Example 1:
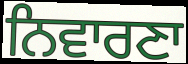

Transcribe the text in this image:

ਨਿਵਾਰਣਾ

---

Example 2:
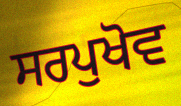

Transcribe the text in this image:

ਸਰਪੁਖੋਵ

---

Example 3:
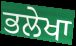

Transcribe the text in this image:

ਭਲੇਖਾ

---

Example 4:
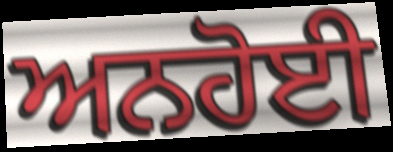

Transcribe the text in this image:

ਅਨਹੋਈ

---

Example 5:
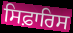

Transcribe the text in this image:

ਸਿਫ਼ਾਰਿਸ